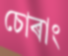
চোৰাং